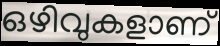
ഒഴിവുകളാണ്